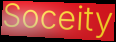
Soceity